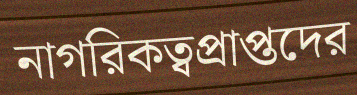
নাগরিকত্বপ্রাপ্তদের